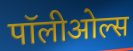
पॉलीओल्स